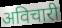
अविचारी